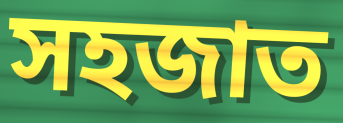
সহজাত